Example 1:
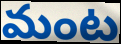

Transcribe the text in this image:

మంట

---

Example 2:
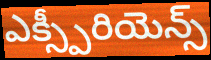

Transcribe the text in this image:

ఎక్స్పీరియెన్స్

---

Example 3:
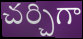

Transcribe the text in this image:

చర్చిగా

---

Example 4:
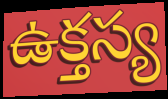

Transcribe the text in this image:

ఉక్తస్య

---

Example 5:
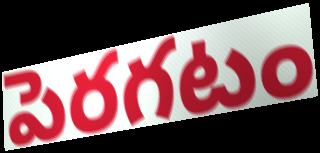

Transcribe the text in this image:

పెరగటం